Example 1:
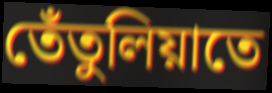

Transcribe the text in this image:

তেঁতুলিয়াতে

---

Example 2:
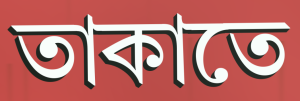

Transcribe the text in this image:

তাকাতে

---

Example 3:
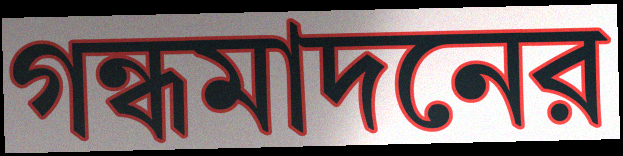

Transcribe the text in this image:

গন্ধমাদনের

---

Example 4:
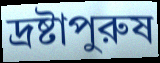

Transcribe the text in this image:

দ্রষ্টাপুরুষ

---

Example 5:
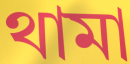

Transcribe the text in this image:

থামা